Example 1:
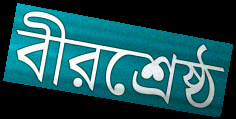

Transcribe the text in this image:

বীরশ্রেষ্ঠ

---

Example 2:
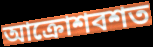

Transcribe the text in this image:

আক্রোশবশত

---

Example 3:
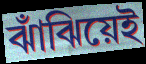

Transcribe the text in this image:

ঝাঁঝিয়েই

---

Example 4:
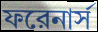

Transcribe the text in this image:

ফরেনার্স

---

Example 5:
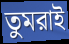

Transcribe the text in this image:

তুমরাই